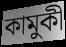
কামুকী